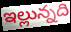
ఇల్లున్నది